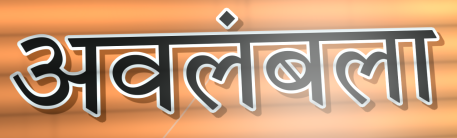
अवलंबला